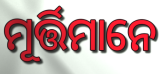
ମୂର୍ତ୍ତିମାନେ